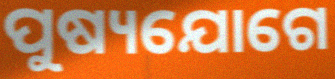
ପୁଷ୍ୟଯୋଗେ